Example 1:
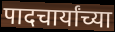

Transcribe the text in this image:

पादचार्यांच्या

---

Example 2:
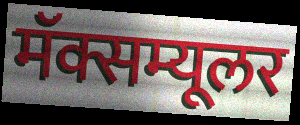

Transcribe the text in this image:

मॅक्सम्यूलर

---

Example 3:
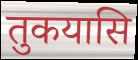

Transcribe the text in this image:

तुकयासि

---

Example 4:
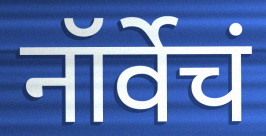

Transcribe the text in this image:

नॉर्वेचं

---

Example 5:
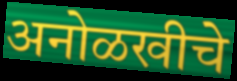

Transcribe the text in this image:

अनोळखीचे